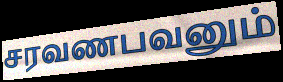
சரவணபவனும்